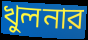
খুলনার